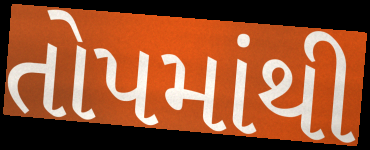
તોપમાંથી